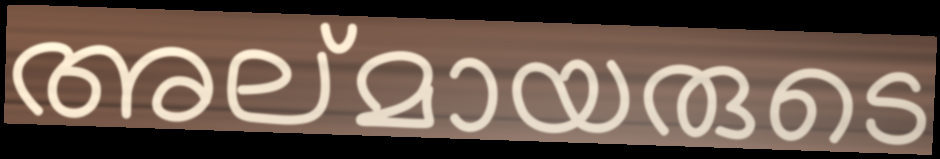
അല്മായരുടെ